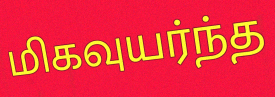
மிகவுயர்ந்த